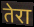
तेरा